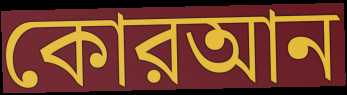
কোরআন